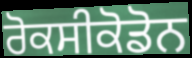
ਰੋਕਸੀਕੋਡੋਨ